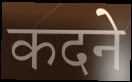
कदने